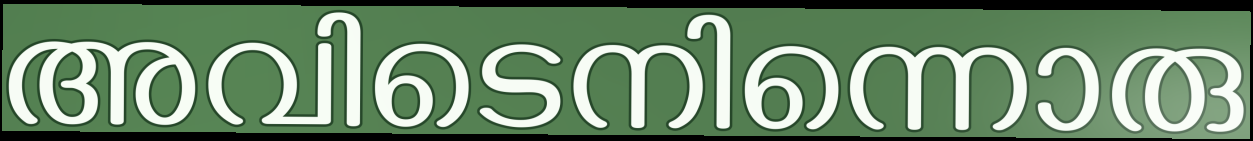
അവിടെനിന്നൊരു